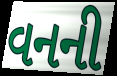
વનની